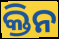
କ୍ତିନ